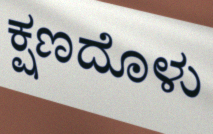
ಕ್ಷಣದೊಳು